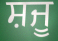
ਸ਼ਜੂ